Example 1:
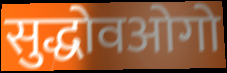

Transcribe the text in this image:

सुद्धोवओगो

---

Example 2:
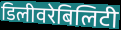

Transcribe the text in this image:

डिलीवरेबिलिटी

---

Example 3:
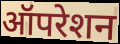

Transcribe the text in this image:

ऑपरेशन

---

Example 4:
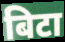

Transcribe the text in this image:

बिटा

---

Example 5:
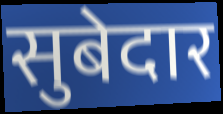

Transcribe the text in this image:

सुबेदार